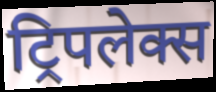
ट्रिपलेक्स